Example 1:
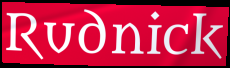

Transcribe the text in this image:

Rudnick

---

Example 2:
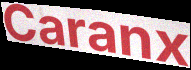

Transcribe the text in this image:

Caranx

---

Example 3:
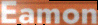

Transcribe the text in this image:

Eamon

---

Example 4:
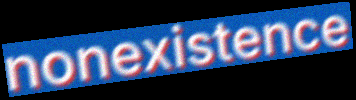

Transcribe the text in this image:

nonexistence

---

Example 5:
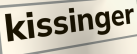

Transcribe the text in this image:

kissinger